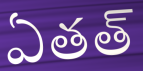
ఏతత్